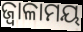
ଜ୍ୱାଳାମୟ